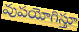
వుపయోగిస్తూ